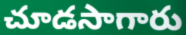
చూడసాగారు